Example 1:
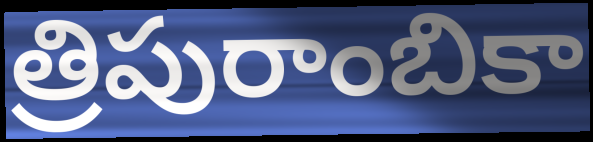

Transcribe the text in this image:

త్రిపురాంబికా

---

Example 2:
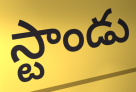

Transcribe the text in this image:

స్టాండు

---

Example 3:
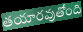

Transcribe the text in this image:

తయారవుతోంది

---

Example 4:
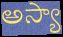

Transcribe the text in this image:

అస్యా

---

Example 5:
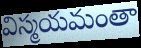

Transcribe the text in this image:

విస్మయమంతా